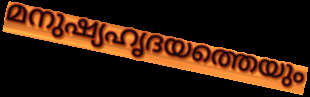
മനുഷ്യഹൃദയത്തെയും